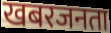
खबरजनता